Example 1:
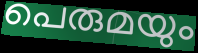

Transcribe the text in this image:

പെരുമയും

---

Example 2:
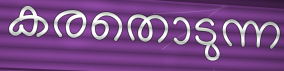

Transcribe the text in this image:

കരതൊടുന്ന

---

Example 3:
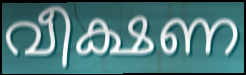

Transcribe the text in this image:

വീക്ഷണ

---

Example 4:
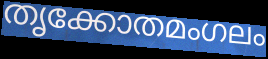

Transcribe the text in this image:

തൃക്കോതമംഗലം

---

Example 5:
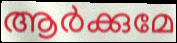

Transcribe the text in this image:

ആർക്കുമേ